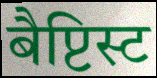
बैप्टिस्ट